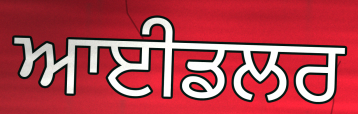
ਆਈਡਲਰ